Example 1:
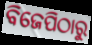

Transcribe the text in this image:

ବିଜେପିଠାରୁ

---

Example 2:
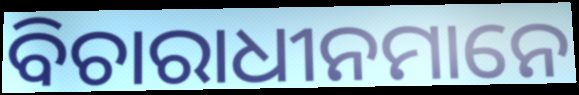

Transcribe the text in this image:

ବିଚାରାଧୀନମାନେ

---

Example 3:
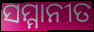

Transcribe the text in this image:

ସମ୍ମାନୀତ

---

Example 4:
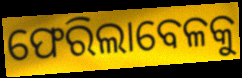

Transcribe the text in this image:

ଫେରିଲାବେଳକୁ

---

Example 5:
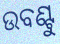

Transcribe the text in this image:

ଉବଣ୍ଟୁ